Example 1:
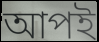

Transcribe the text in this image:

আপই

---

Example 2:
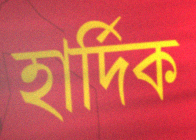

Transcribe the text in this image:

হার্দিক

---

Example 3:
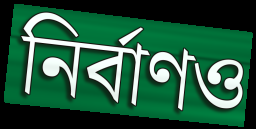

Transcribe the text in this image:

নির্বাণও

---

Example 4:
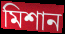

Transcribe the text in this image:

মিশান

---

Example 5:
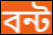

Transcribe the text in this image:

বন্ট